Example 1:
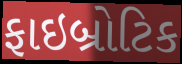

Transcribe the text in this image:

ફાઇબ્રોટિક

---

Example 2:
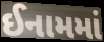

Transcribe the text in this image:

ઈનામમાં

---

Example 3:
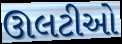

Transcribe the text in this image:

ઊલટીઓ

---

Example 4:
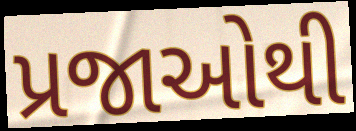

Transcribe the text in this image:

પ્રજાઓથી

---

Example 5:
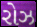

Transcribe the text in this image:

રોઝ